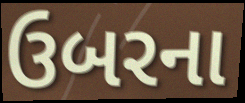
ઉબરના